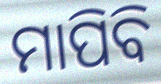
ମାପିବି